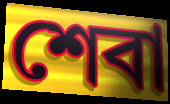
শেবা